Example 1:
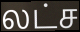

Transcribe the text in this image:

லட்ச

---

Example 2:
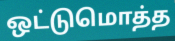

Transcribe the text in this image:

ஒட்டுமொத்த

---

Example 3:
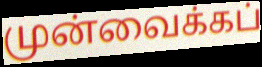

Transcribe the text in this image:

முன்வைக்கப்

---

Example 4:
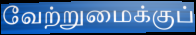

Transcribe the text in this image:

வேற்றுமைக்குப்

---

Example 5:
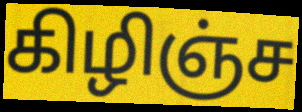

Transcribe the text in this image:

கிழிஞ்ச